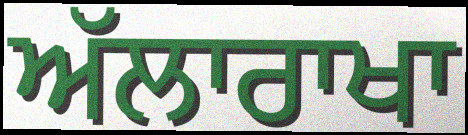
ਅੱਲਾਰਾਖਾ